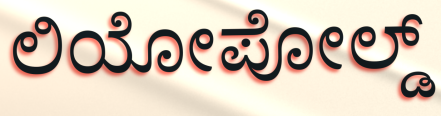
ಲಿಯೋಪೋಲ್ಡ್